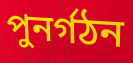
পুনর্গঠন